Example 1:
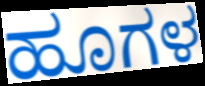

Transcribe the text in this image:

ಹೂಗಳ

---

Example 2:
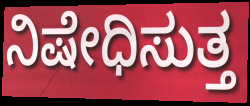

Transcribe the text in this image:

ನಿಷೇಧಿಸುತ್ತ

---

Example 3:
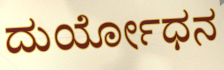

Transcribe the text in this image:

ದುರ್ಯೋಧನ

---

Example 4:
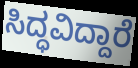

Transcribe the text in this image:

ಸಿದ್ಧವಿದ್ದಾರೆ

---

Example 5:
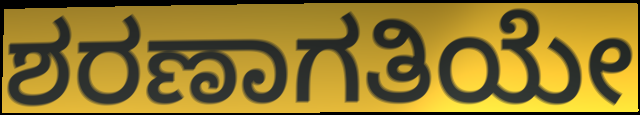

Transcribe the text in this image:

ಶರಣಾಗತಿಯೇ